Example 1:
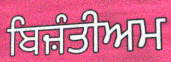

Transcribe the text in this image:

ਬਿਜ਼ੰਤੀਅਮ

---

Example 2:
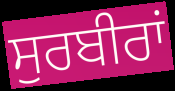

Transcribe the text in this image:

ਸੁਰਬੀਰਾਂ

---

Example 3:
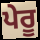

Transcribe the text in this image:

ਪੇਰੂ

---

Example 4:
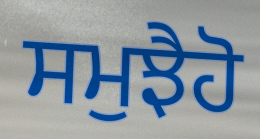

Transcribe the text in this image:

ਸਮੁਝੈਹੋ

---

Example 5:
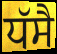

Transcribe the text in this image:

ਧੱਸੈ